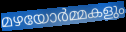
മഴയോർമ്മകളും